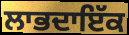
ਲਾਭਦਾਇੱਕ